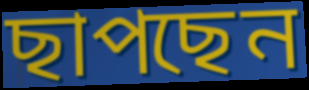
ছাপছেন